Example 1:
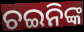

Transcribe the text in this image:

ଚଇନିଙ୍କ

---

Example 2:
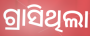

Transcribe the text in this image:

ଗ୍ରାସିଥିଲା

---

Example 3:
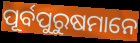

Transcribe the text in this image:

ପୂର୍ବପୁରୁଷମାନେ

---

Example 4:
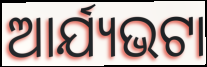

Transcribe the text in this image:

ଆର୍ଯ୍ୟଭଟା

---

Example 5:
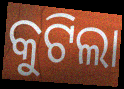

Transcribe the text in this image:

କୁଟିଲା